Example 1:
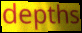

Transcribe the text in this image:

depths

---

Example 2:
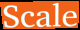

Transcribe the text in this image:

Scale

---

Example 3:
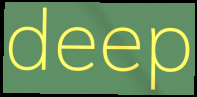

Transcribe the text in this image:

deep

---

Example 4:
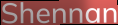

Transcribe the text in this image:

Shennan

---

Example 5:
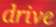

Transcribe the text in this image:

drive